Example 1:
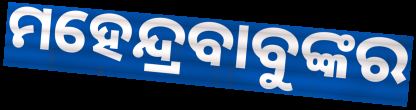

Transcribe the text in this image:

ମହେନ୍ଦ୍ରବାବୁଙ୍କର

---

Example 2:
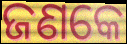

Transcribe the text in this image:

ଜଣକେ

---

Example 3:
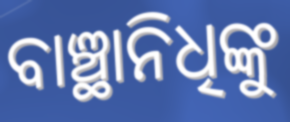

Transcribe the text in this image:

ବାଞ୍ଛାନିଧିଙ୍କୁ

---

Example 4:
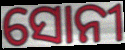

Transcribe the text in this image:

ସୋନୀ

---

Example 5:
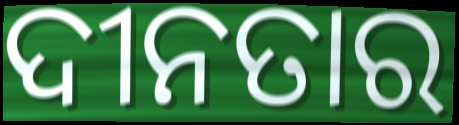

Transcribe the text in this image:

ଦୀନତାର